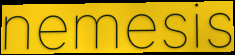
nemesis